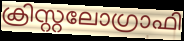
ക്രിസ്റ്റലോഗ്രാഫി